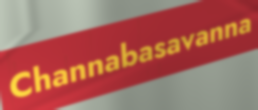
Channabasavanna